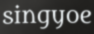
singyoe